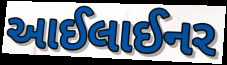
આઈલાઈનર